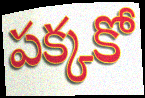
పక్కకో